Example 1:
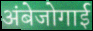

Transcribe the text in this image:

अंबेजोगाई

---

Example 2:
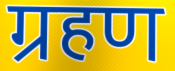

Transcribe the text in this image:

ग्रहण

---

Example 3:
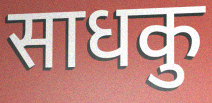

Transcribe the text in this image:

साधकु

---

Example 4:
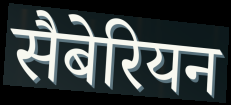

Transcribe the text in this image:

सैबेरियन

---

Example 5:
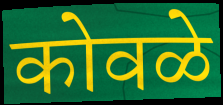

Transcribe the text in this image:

कोवळे